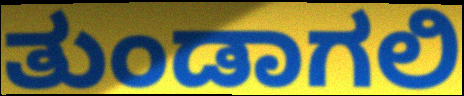
ತುಂಡಾಗಲಿ